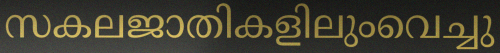
സകലജാതികളിലുംവെച്ചു